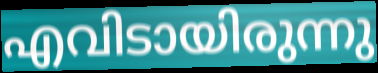
എവിടായിരുന്നു